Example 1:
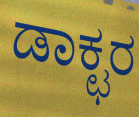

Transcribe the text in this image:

ಡಾಕ್ಟರ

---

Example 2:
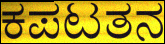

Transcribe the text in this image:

ಕಪಟತನ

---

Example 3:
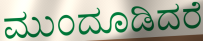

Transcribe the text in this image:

ಮುಂದೂಡಿದರೆ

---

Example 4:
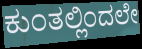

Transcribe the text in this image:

ಕುಂತಲ್ಲಿಂದಲೇ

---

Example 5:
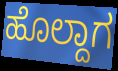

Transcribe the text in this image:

ಹೊಲ್ದಾಗ